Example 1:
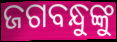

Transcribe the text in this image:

ଜଗବନ୍ଧୁଙ୍କୁ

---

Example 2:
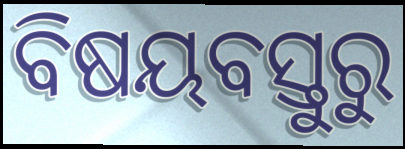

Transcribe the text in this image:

ବିଷୟବସ୍ତୁରୁ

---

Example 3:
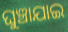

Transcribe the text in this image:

ଘୁଞ୍ଚାଯାଇ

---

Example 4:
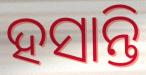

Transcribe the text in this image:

ହସାନ୍ତି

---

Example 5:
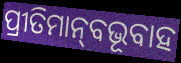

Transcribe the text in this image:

ପ୍ରୀତିମାନ୍‌ବଭୂବାହ